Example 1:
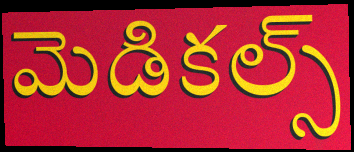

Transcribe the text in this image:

మెడికల్స్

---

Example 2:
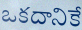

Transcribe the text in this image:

ఒకదానికే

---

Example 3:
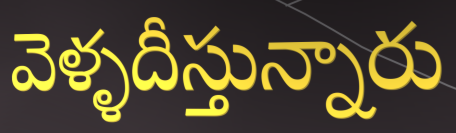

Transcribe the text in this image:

వెళ్ళదీస్తున్నారు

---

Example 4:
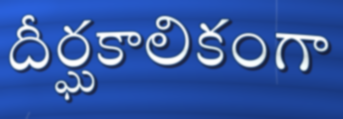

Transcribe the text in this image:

దీర్ఘకాలికంగా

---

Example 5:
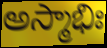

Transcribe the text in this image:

అస్మాభిః